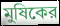
মুষিকের